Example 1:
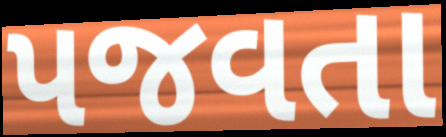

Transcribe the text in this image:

પજવતા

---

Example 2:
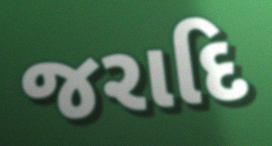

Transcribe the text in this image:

જરાદિ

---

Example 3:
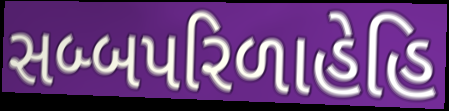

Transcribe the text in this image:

સબ્બપરિળાહેહિ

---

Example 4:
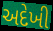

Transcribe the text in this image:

અદેખી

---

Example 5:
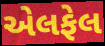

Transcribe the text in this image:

એલફેલ